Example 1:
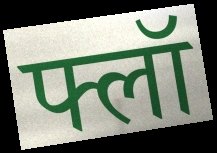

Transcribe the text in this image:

फ्लॉ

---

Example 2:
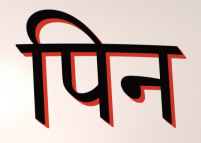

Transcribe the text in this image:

पिन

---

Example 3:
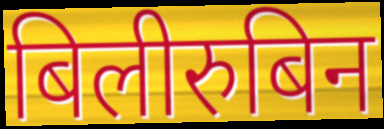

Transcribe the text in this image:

बिलीरुबिन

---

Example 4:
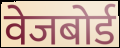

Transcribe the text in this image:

वेजबोर्ड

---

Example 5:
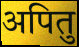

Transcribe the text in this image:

अपितु